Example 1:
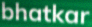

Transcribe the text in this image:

bhatkar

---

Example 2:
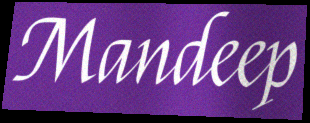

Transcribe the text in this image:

Mandeep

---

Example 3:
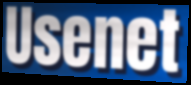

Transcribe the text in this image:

Usenet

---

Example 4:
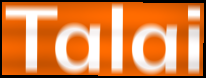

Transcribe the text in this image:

Talai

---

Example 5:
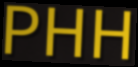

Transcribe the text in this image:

PHH